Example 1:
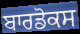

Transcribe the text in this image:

ਬਾਰਡੋਕਸ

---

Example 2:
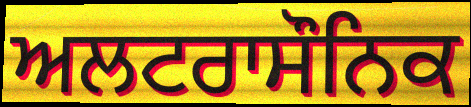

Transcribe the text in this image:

ਅਲਟਰਾਸੌਨਿਕ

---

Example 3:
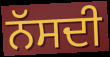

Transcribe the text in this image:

ਨੱਸਦੀ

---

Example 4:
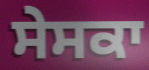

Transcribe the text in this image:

ਸੇਸਕਾ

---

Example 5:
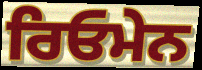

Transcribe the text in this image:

ਰਿਓਮੇਨ